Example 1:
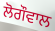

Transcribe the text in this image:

ਲੋਗੌਵਾਲ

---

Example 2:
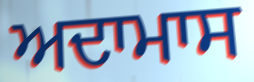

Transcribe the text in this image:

ਅਦਾਮਾਸ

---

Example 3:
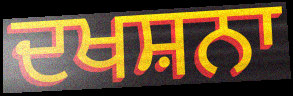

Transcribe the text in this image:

ਦਖਸ਼ਨਾ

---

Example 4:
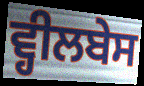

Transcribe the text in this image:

ਵ੍ਹੀਲਬੇਸ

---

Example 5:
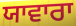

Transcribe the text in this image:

ਯਾਵਾਰਾ